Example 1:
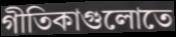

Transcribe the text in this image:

গীতিকাগুলোতে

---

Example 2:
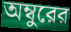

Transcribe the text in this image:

অম্বুরের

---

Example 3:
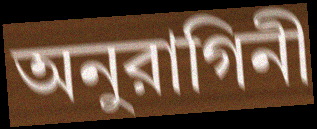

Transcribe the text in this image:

অনুরাগিনী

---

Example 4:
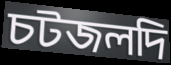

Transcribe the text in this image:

চটজলদি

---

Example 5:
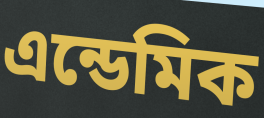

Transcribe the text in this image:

এন্ডেমিক